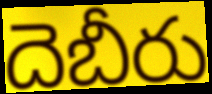
దెబీరు